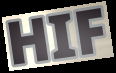
HIF